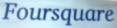
Foursquare